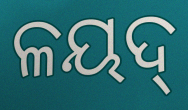
ଳୟଦ୍